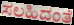
ಸಲಹಿದಂತೆ